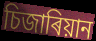
চিজাৰিয়ান